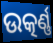
ଉତ୍କର୍ଣ୍ଣ